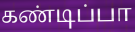
கண்டிப்பா